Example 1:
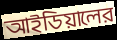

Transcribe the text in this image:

আইডিয়ালের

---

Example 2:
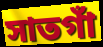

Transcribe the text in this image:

সাতগাঁ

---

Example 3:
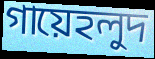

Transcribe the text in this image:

গায়েহলুদ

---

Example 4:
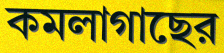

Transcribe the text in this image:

কমলাগাছের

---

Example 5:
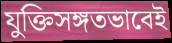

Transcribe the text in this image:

যুক্তিসঙ্গতভাবেই